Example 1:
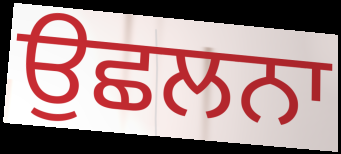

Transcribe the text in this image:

ਉਛਲਨਾ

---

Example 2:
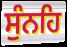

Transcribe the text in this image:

ਸੁੰਨਹਿ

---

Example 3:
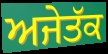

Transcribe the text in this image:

ਅਜੇਤੱਕ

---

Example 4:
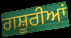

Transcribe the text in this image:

ਗਸ਼ੂਰੀਆਂ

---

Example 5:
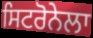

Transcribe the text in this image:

ਸਿਟਰੋਨੇਲਾ